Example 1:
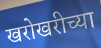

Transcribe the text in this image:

खरोखरीच्या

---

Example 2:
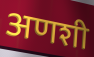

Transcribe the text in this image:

अणशी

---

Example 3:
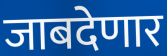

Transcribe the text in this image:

जाबदेणार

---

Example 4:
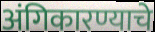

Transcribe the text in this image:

अंगिकारण्याचे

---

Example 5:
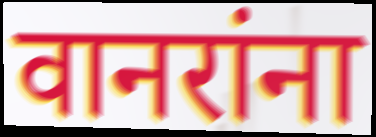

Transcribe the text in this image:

वानरांना